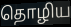
தொழிய